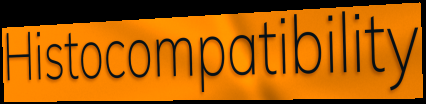
Histocompatibility